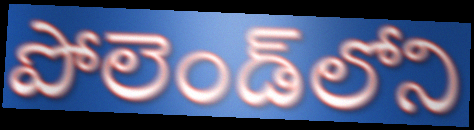
పోలెండ్‌లోని